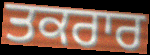
ਤਕਰਾਰ